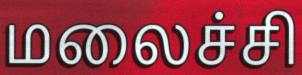
மலைச்சி